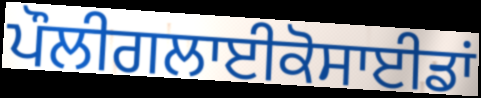
ਪੌਲੀਗਲਾਈਕੋਸਾਈਡਾਂ